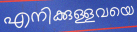
എനിക്കുള്ളവയെ